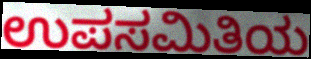
ಉಪಸಮಿತಿಯ